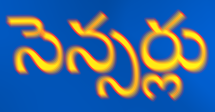
సెన్సర్లు